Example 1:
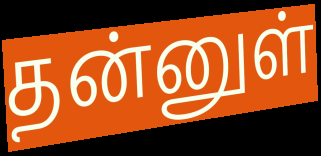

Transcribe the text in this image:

தன்னுள்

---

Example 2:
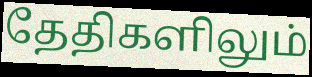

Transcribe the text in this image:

தேதிகளிலும்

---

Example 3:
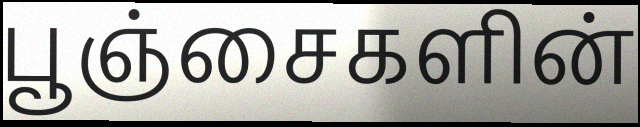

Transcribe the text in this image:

பூஞ்சைகளின்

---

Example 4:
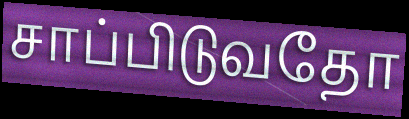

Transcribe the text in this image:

சாப்பிடுவதோ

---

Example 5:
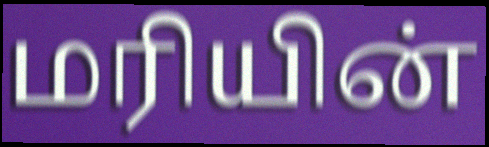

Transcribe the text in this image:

மரியின்